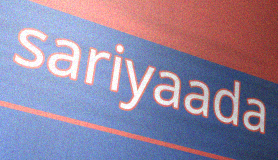
sariyaada